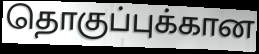
தொகுப்புக்கான